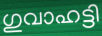
ഗുവാഹട്ടി